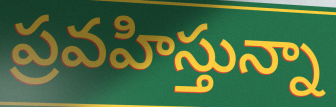
ప్రవహిస్తున్నా